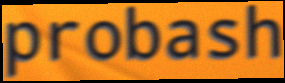
probash